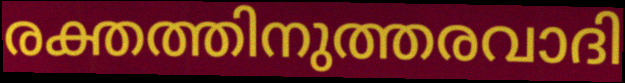
രക്തത്തിനുത്തരവാദി